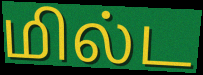
மில்ட